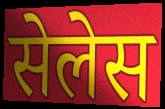
सेलेस